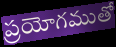
ప్రయోగముతో